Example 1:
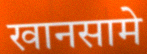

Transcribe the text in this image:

खानसामे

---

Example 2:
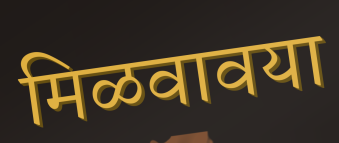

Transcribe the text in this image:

मिळवावया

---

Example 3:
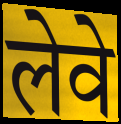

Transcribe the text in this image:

लेवे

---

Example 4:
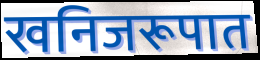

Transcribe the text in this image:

खनिजरूपात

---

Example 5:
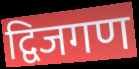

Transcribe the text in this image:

द्विजगण